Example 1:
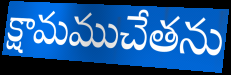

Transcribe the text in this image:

క్షామముచేతను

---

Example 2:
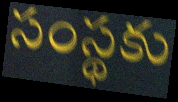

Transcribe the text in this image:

సంస్థకు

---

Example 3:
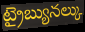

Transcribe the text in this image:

ట్రైబ్యునల్కు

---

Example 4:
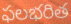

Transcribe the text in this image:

ఫలభరిత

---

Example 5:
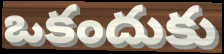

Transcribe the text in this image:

ఒకందుకు